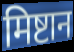
मिष्टान